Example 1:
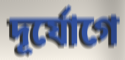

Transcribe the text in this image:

দূর্যোগে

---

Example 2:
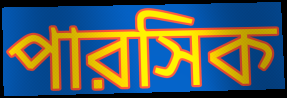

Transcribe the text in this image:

পারসিক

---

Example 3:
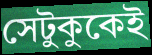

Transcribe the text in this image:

সেটুকুকেই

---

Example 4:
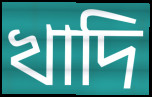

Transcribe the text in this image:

খাদি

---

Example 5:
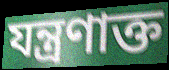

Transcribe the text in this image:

যন্ত্রণাক্ত